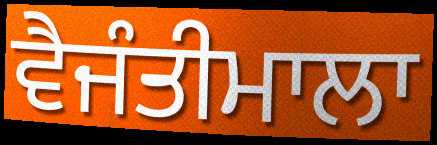
ਵੈਜੰਤੀਮਾਲਾ